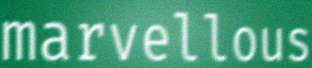
marvellous